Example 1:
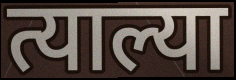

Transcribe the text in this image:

त्याल्या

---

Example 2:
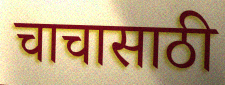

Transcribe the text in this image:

चाचासाठी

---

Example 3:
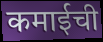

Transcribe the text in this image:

कमाईची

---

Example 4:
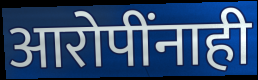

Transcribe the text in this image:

आरोपींनाही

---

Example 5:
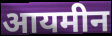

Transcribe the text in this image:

आयमीन